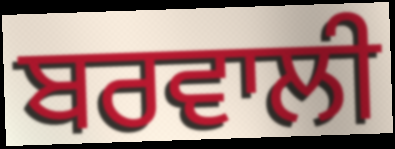
ਬਰਵਾਲੀ